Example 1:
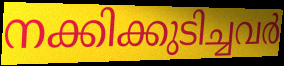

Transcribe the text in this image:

നക്കിക്കുടിച്ചവർ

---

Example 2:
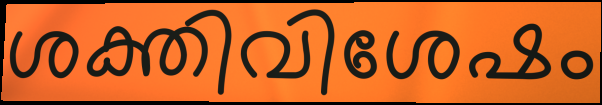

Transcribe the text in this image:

ശക്തിവിശേഷം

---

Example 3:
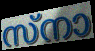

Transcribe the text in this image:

സ്‌നാ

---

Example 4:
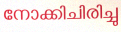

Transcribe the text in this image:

നോക്കിചിരിച്ചു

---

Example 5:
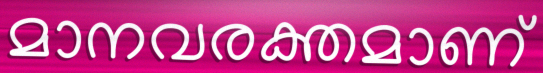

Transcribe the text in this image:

മാനവരക്തമാണ്